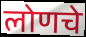
लोणचे